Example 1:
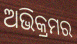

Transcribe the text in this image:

ଅଭିକ୍ରମର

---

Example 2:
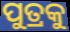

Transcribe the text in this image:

ପୁତ୍ରକୁ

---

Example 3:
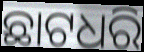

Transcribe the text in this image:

ଛାଟଧରି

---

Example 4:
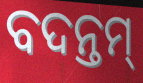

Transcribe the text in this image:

ବଦନ୍ତମ୍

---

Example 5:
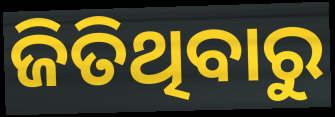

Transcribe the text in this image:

ଜିତିଥିବାରୁ